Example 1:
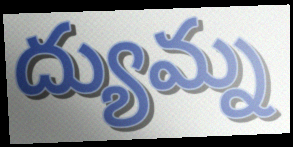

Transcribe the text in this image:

ద్యుమ్న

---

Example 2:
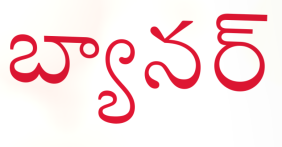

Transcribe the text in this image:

బ్యానర్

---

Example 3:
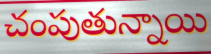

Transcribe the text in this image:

చంపుతున్నాయి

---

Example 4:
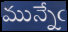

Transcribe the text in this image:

మున్నేఁ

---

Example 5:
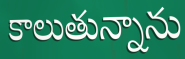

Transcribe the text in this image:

కాలుతున్నాను